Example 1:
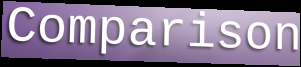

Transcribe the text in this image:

Comparison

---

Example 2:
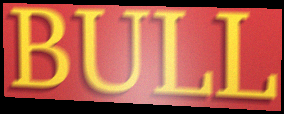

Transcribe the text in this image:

BULL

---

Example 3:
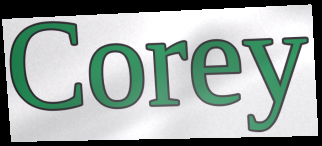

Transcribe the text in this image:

Corey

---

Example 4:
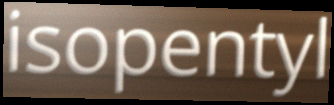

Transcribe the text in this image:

isopentyl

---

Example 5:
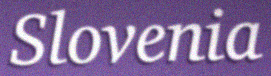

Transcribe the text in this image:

Slovenia